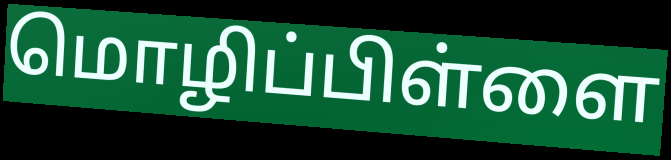
மொழிப்பிள்ளை